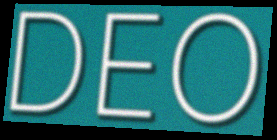
DEO